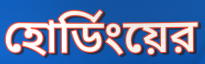
হোর্ডিংয়ের